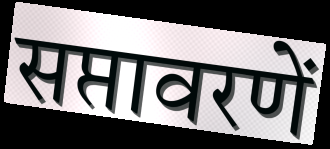
सप्तावरणें